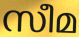
സീമ